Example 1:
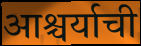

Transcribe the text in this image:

आश्चर्याची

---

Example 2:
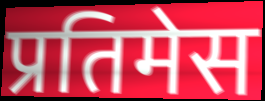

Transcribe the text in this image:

प्रतिमेस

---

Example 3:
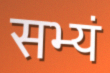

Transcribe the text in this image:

सभ्यं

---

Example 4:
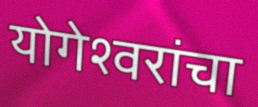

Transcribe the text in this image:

योगेश्वरांचा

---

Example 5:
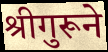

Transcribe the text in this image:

श्रीगुरूने